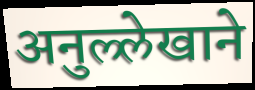
अनुल्लेखाने